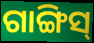
ଗାଙ୍ଗିସ୍